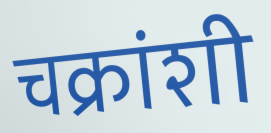
चक्रांशी